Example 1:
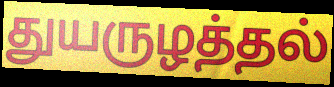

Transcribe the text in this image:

துயருழத்தல்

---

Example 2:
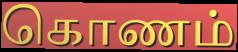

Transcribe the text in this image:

கொணம்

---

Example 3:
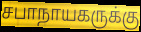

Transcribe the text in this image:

சபாநாயகருக்கு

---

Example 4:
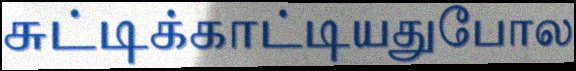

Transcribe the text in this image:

சுட்டிக்காட்டியதுபோல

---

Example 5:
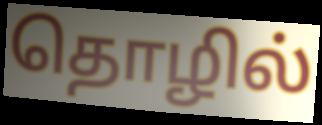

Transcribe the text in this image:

தொழில்